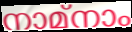
നാമ്നാം